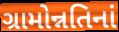
ગ્રામોન્નતિનાં